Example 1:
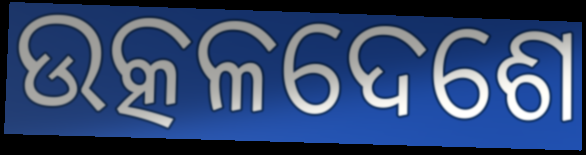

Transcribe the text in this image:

ଉତ୍କଳଦେଶେ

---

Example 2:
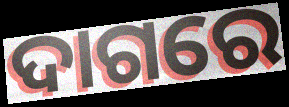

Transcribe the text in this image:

ଦାଗରେ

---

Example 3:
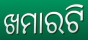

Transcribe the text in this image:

ଖମାରଟି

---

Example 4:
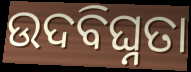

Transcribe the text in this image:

ଉଦବିଘ୍ନତା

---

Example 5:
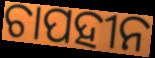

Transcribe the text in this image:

ଚାପହୀନ